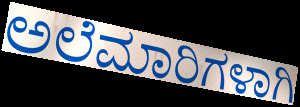
ಅಲೆಮಾರಿಗಳಾಗಿ